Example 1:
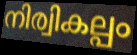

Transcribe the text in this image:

നിര്വികല്പം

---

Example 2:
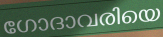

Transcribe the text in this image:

ഗോദാവരിയെ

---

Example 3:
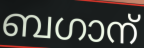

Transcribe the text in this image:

ബഗാന്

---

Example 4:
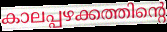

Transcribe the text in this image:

കാലപ്പഴക്കത്തിന്റെ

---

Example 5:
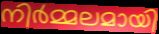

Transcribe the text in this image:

നിർമ്മലമായി